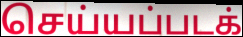
செய்யப்படக்